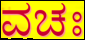
ವಚಃ